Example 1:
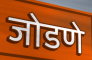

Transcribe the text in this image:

जोडणे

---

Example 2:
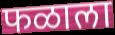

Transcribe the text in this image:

फळाला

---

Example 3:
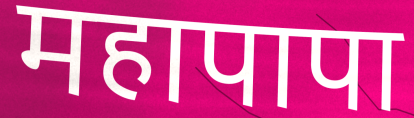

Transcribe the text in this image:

महापापा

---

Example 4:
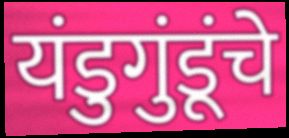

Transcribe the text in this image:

यंडुगुंडूंचे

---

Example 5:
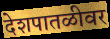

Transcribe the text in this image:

देशपातळीवर